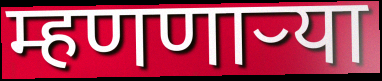
म्हणणाऱ्या